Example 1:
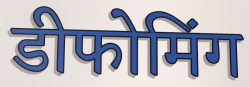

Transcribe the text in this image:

डीफोमिंग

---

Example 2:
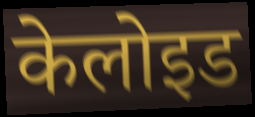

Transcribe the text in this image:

केलोइड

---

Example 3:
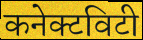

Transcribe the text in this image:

कनेक्टविटी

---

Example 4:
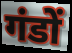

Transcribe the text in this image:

गंडों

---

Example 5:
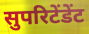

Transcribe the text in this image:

सुपरिटेंडेंट